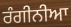
ਰੰਗੀਨੀਆ